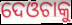
ଦେଓଚାକୁ